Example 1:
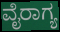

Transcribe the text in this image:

ವೈರಾಗ್ಯ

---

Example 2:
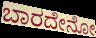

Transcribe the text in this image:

ಬಾರದೇನೋ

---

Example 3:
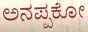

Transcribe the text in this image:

ಅನಪ್ಪಕೋ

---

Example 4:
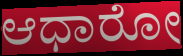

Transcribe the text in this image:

ಆಧಾರೋ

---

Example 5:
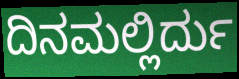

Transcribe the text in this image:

ದಿನಮಲ್ಲಿರ್ದು